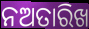
ନଅତାରିଖ